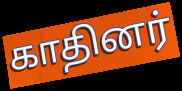
காதினர்